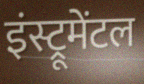
इंस्ट्रूमेंटल